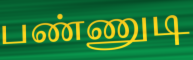
பண்ணுடி